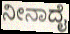
ನೀನಾದೈ